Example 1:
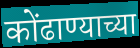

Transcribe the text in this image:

कोंढाण्याच्या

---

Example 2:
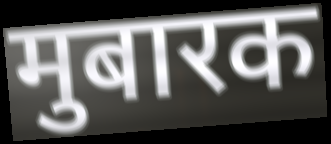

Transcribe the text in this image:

मुबारक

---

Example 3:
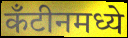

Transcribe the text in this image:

कँटीनमध्ये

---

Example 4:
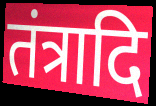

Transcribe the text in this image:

तंत्रादि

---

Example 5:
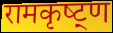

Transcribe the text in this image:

रामकृष्ट्ण